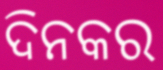
ଦିନକର